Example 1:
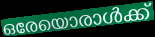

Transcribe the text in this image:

ഒരേയൊരാൾക്ക്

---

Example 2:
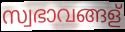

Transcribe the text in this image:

സ്വഭാവങ്ങള്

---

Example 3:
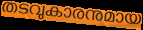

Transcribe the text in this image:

തടവുകാരനുമായ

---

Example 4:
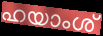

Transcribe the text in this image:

ഹയാംശ്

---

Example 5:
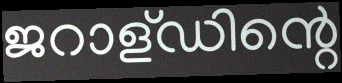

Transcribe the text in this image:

ജറാള്ഡിന്റെ